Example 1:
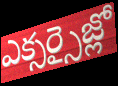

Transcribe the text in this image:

ఎక్సర్సైజ్లో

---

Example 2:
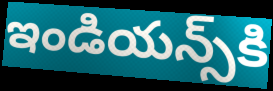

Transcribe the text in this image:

ఇండియన్స్‌కి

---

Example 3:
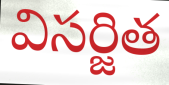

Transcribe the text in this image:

విసర్జిత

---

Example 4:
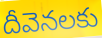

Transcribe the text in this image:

దీవెనలకు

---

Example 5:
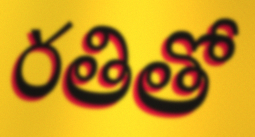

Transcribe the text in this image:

రతితో